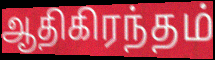
ஆதிகிரந்தம்